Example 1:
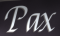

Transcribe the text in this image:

Pax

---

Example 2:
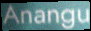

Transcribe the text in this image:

Anangu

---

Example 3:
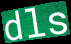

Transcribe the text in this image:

dls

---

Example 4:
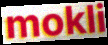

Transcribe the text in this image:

mokli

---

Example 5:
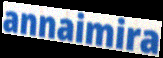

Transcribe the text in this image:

annaimira